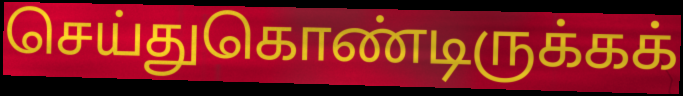
செய்துகொண்டிருக்கக்